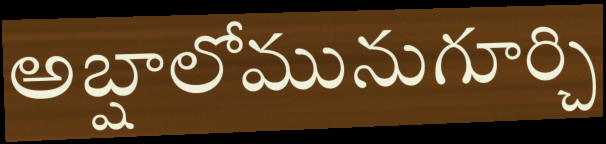
అబ్షాలోమునుగూర్చి